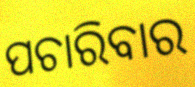
ପଚାରିବାର